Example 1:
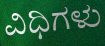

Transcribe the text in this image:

ವಿಧಿಗಳು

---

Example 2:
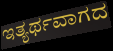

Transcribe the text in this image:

ಇತ್ಯರ್ಥವಾಗದ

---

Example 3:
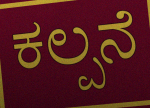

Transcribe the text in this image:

ಕಲ್ಪನೆ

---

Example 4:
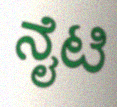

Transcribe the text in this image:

ನೈಟಿ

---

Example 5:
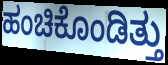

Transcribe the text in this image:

ಹಂಚಿಕೊಂಡಿತ್ತು